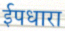
ईपधारा